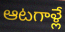
ఆటగాళ్లే